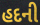
હદની